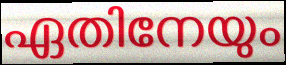
ഏതിനേയും